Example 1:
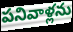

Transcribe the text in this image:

పనివాళ్లను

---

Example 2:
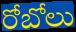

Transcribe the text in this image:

రోబోలు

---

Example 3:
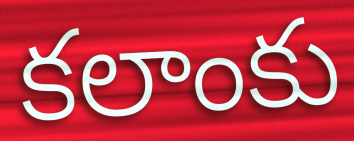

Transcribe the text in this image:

కలాంకు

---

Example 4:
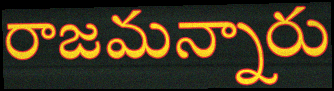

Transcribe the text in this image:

రాజమన్నారు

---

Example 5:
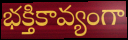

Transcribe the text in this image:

భక్తికావ్యంగా